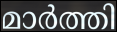
മാർത്തി